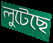
লুটেছে